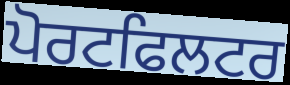
ਪੋਰਟਫਿਲਟਰ